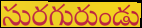
సురగురుండు